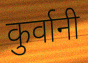
कुर्वानी